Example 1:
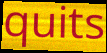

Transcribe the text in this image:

quits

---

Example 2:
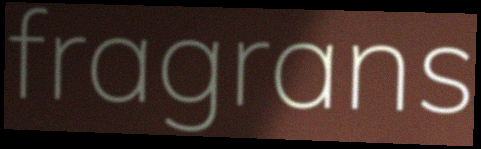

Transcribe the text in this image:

fragrans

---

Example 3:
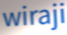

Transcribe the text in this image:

wiraji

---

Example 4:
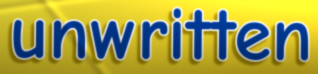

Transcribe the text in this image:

unwritten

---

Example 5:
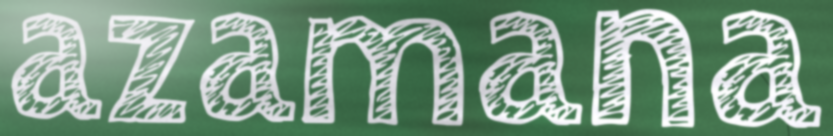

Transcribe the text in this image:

azamana